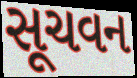
સૂચવન